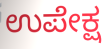
ಉಪೇಕ್ಷ